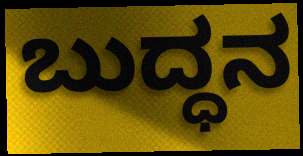
ಬುದ್ಧನ